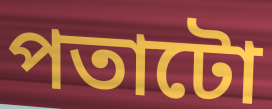
পতাটো